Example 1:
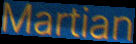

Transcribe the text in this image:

Martian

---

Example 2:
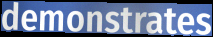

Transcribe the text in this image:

demonstrates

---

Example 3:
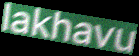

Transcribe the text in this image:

lakhavu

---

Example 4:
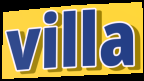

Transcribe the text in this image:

villa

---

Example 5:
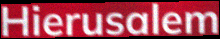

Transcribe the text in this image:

Hierusalem